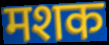
मशक